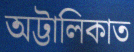
অট্টালিকাত